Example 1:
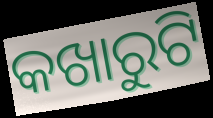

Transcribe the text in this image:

କଖାରୁଟି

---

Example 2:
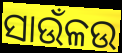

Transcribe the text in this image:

ସାଉଁଳଉ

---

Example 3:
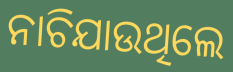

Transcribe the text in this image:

ନାଚିଯାଉଥିଲେ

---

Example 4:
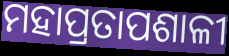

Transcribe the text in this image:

ମହାପ୍ରତାପଶାଳୀ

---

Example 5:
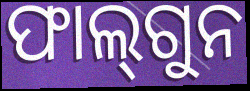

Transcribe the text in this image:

ଫାଲ୍‍ଗୁନ